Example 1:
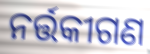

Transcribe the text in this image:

ନର୍ତ୍ତକୀଗଣ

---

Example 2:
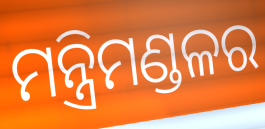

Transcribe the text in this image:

ମନ୍ତ୍ରିମଣ୍ଡଳର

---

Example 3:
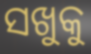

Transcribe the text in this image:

ସଖୁକୁ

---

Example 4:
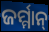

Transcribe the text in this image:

ଜର୍ମ୍ମାନ୍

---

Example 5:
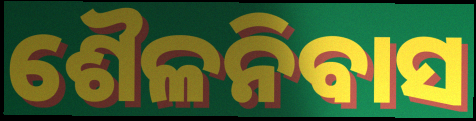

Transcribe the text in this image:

ଶୈଳନିବାସ